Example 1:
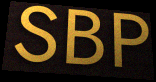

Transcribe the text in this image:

SBP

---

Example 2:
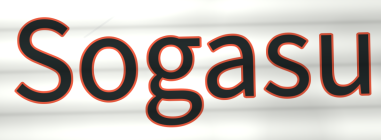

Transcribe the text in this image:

Sogasu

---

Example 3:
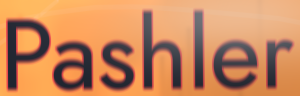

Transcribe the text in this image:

Pashler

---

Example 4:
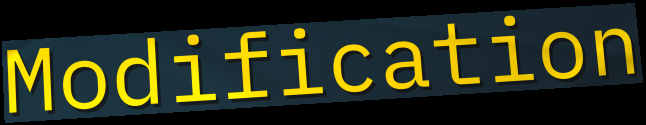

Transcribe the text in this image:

Modification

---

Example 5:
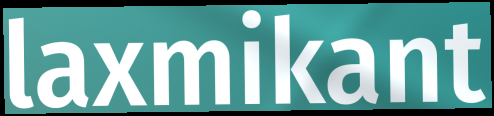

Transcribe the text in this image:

laxmikant